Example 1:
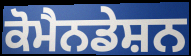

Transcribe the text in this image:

ਕੋਮੈਨਡੇਸ਼ਨ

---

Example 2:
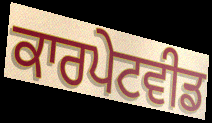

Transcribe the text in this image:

ਕਾਰਪੇਟਵੀਡ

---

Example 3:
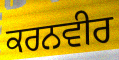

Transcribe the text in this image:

ਕਰਨਵੀਰ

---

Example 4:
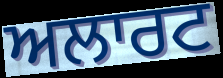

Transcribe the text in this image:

ਅਲਾਰਟ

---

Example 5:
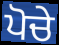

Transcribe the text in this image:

ਪੋਚੇ